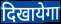
दिखायेगा